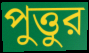
পুত্তুর